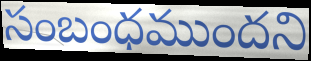
సంబంధముందని